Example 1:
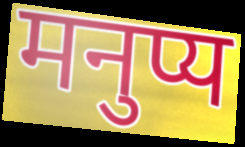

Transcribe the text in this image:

मनुप्य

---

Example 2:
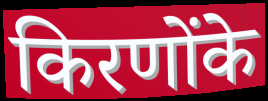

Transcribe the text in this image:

किरणोंके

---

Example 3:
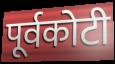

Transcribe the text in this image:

पूर्वकोटी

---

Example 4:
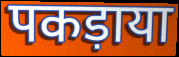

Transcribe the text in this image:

पकड़ाया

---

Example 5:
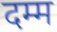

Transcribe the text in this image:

दम्म